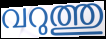
വറുത്തു